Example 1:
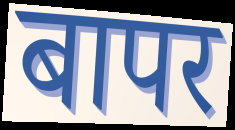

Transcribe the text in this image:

बापर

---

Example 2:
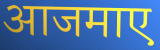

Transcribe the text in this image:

आजमाए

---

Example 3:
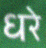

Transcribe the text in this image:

धरे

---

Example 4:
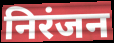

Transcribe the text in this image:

निरंजन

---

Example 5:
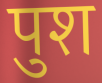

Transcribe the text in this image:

पुश